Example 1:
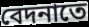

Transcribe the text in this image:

বেদনাতে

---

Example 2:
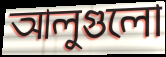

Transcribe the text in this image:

আলুগুলো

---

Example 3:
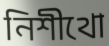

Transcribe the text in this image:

নিশীথো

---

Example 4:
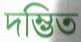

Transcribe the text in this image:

দম্ভিত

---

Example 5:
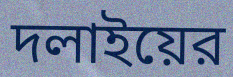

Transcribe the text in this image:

দলাইয়ের